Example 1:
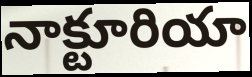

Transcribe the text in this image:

నాక్టూరియా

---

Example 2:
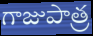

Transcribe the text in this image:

గాజుపాత్ర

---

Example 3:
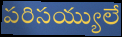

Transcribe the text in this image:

పరిసయ్యులే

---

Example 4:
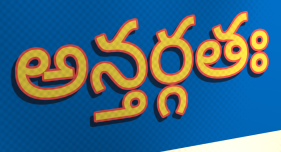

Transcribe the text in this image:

అన్తర్గతః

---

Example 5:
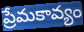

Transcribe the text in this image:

ప్రేమకావ్యం